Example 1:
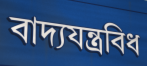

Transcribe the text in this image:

বাদ্যযন্ত্ৰবিধ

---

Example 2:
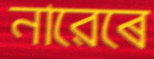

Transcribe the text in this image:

নাৱেৰে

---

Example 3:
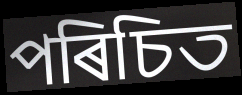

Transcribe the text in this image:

পৰিচিত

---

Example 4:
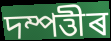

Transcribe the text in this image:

দম্পত্তীৰ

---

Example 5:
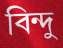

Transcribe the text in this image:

বিন্দু